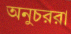
অনুচররা